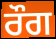
ਰੌਗ